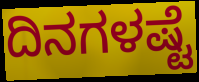
ದಿನಗಳಷ್ಟೆ